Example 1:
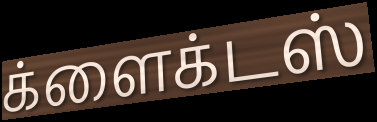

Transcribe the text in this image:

க்ளைக்டஸ்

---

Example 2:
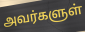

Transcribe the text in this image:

அவர்களுள்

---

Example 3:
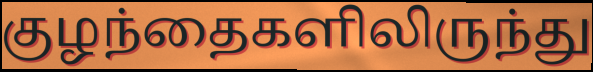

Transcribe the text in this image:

குழந்தைகளிலிருந்து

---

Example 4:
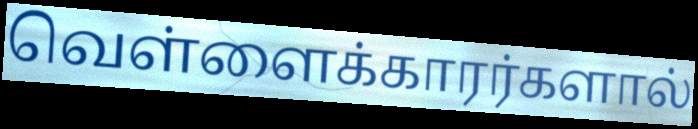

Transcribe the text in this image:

வெள்ளைக்காரர்களால்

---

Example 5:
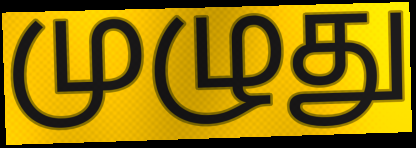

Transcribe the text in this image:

முழுது